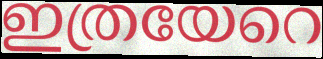
ഇത്രയേറെ